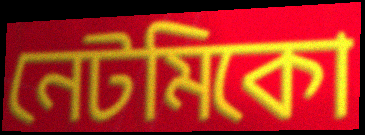
নেটমিকো